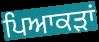
ਪਿਆਕੜਾਂ